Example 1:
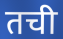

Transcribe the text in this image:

तची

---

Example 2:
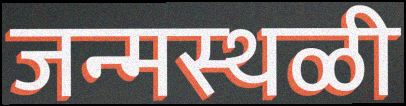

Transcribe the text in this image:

जन्मस्थळी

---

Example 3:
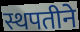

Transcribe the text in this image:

स्थपतीने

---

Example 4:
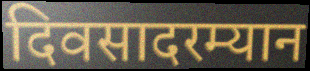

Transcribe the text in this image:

दिवसादरम्यान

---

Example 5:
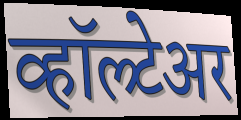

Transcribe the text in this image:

व्हॉल्टेअर